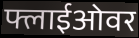
फ्लाईओवर